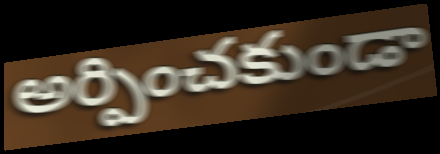
అర్పించకుండా